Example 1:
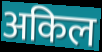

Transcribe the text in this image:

अकिल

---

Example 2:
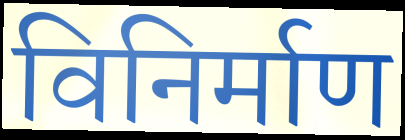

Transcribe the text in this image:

विनिर्माण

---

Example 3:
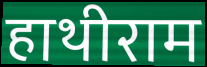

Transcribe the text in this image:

हाथीराम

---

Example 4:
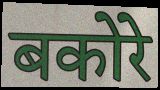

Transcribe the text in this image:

बकोरे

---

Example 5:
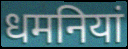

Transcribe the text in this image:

धमनियां